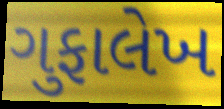
ગુફાલેખ